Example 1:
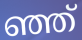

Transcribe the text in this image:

ഞ്ഞ്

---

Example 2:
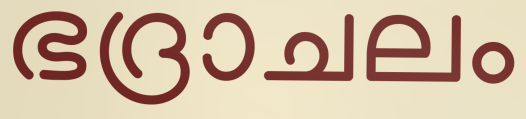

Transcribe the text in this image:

ഭദ്രാചലം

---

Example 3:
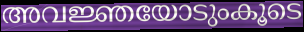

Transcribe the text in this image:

അവജ്ഞയോടുംകൂടെ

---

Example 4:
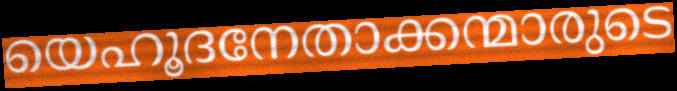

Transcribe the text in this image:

യെഹൂദനേതാക്കന്മാരുടെ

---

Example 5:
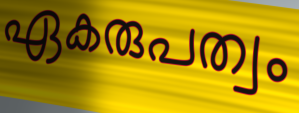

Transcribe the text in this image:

ഏകരുപത്വം